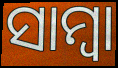
ସାମ୍ବା